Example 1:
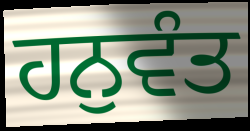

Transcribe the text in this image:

ਹਨੁਵੰਤ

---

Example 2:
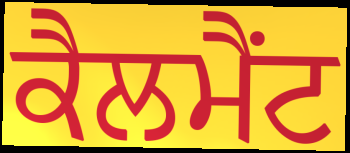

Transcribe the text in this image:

ਕੈਲਮੈਂਟ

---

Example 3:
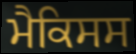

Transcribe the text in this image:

ਮੈਕਿਸਸ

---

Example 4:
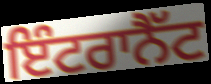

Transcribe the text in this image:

ਇੰਟਰਾਨੈੱਟ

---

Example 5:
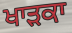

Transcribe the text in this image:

ਖਾੜਕਾ